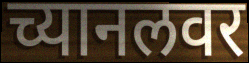
च्यानलवर